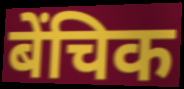
बेंचिक